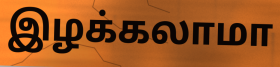
இழக்கலாமா